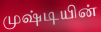
முஷ்டியின்